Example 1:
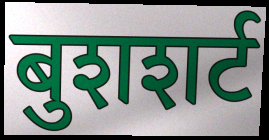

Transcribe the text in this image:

बुशशर्ट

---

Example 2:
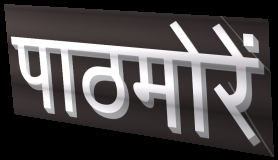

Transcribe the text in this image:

पाठमोरें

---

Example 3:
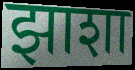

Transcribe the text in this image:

झाशा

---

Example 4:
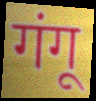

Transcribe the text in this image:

गंगू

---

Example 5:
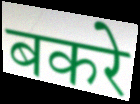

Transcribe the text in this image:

बकरे